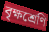
বৃক্ষশ্রেণি